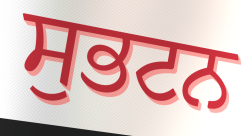
ਸੁਭਟਨ